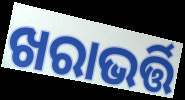
ଖରାଭର୍ତ୍ତି